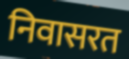
निवासरत